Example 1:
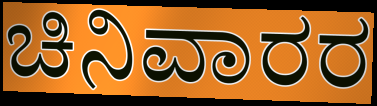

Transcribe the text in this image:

ಚಿನಿವಾರರ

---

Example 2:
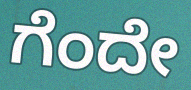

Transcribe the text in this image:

ಗೆಂದೇ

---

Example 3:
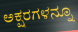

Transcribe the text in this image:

ಅಕ್ಷರಗಳನ್ನೂ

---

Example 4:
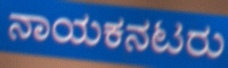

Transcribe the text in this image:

ನಾಯಕನಟರು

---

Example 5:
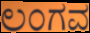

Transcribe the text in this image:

ಲಂಗವ